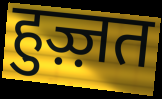
हुज़्ज़त